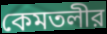
কেমতলীর